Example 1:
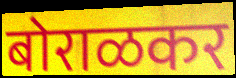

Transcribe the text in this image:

बोराळकर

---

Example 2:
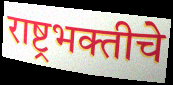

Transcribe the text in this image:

राष्ट्रभक्तीचे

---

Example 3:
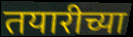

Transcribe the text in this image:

तयारीच्या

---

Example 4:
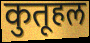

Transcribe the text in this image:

कुतूहल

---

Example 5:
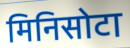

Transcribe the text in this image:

मिनिसोटा